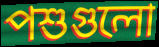
পশুগুলো